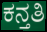
ಕನ್ತತಿ